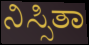
ನಿಸ್ಸಿತಾ